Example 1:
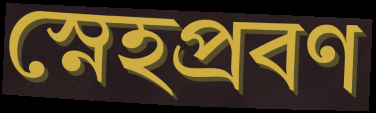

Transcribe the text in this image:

স্নেহপ্রবণ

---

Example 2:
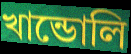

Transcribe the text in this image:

খান্ডোলি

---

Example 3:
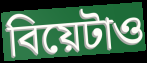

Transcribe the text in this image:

বিয়েটাও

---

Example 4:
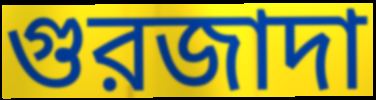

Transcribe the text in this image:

গুরজাদা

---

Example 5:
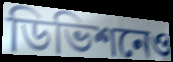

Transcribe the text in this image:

ডিভিশনেও